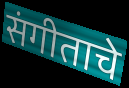
संगीताचे